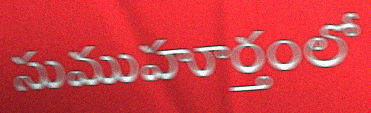
సుముహూర్తంలో